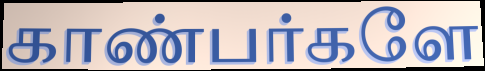
காண்பர்களே